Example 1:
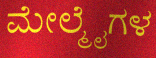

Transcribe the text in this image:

ಮೇಲ್ಮೈಗಳ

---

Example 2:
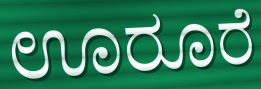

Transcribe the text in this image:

ಊರೂರೆ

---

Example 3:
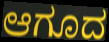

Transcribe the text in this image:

ಆಗೂದ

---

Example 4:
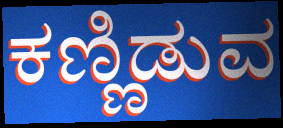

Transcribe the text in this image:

ಕಣ್ಣಿಡುವ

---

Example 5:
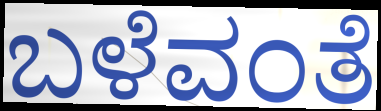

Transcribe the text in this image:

ಬಳೆವಂತೆ